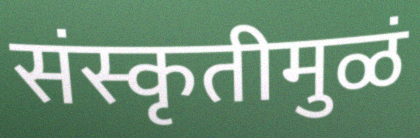
संस्कृतीमुळं